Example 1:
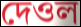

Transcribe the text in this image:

দেওল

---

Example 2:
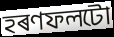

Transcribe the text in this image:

হৰণফলটো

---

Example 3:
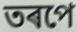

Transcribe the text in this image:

তৰপে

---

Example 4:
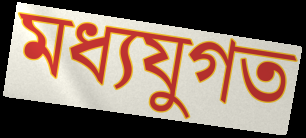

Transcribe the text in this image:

মধ্যযুগত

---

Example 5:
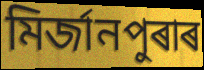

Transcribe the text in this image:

মিৰ্জানপুৰাৰ